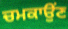
ਚਮਕਾਉਂਣ